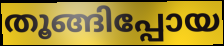
തൂങ്ങിപ്പോയ